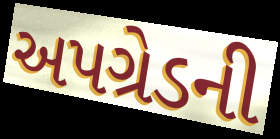
અપગ્રેડની